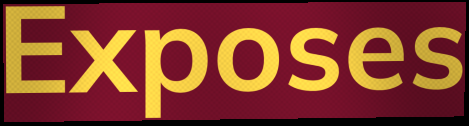
Exposes